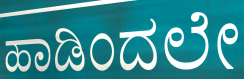
ಹಾಡಿಂದಲೇ